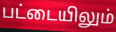
பட்டையிலும்